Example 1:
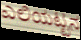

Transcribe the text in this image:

ಎಲಿಯಟ್ಟನ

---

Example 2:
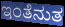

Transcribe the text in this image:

ಇಂತೆನುತ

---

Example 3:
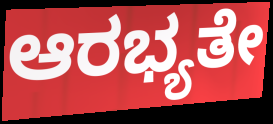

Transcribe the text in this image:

ಆರಭ್ಯತೇ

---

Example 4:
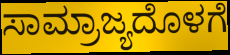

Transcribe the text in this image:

ಸಾಮ್ರಾಜ್ಯದೊಳಗೆ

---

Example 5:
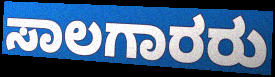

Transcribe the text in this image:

ಸಾಲಗಾರರು